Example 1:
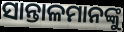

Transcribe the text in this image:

ସାନ୍ତାଳମାନଙ୍କୁ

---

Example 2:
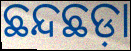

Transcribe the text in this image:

ଛନ୍ଦଛଡ଼ା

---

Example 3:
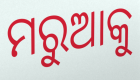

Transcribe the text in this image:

ମରୁଆକୁ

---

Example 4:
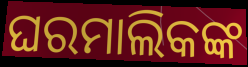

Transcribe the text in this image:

ଘରମାଲିକଙ୍କ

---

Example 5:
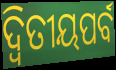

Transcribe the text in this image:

ଦ୍ୱିତୀୟପର୍ବ